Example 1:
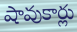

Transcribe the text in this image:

షావుకార్లు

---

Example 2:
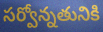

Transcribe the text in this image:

సర్వోన్నతునికి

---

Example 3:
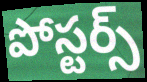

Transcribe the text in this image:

పోస్టర్స్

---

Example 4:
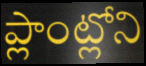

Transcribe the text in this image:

ప్లాంట్లోని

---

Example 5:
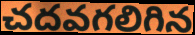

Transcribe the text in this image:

చదవగలిగిన